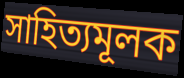
সাহিত্যমূলক